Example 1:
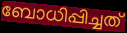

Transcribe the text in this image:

ബോധിപ്പിച്ചത്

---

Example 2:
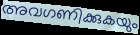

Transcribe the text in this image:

അവഗണിക്കുകയും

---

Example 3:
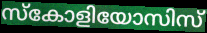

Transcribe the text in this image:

സ്കോളിയോസിസ്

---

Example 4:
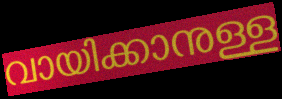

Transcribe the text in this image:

വായിക്കാനുള്ള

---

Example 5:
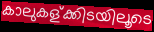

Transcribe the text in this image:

കാലുകള്ക്കിടയിലൂടെ